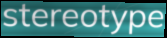
stereotype